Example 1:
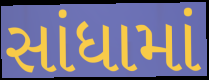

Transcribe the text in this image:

સાંધામાં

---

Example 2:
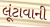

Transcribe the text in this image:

લૂંટાવાની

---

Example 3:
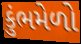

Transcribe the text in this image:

કુંભમેળો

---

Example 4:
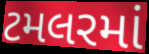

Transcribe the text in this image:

ટમલરમાં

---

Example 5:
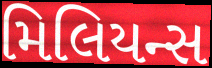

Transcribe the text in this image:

મિલિયન્સ